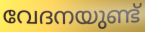
വേദനയുണ്ട്